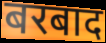
बरबाद